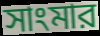
সাংমার